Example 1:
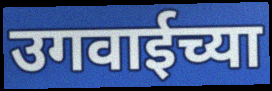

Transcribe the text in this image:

उगवाईच्या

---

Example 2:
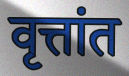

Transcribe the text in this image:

वृत्तांत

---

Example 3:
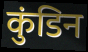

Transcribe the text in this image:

कुंडिन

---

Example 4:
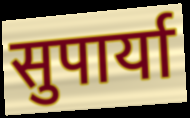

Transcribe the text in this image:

सुपार्या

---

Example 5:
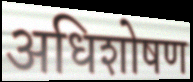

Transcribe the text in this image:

अधिशोषण